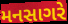
મનસાગરે